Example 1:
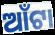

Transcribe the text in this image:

ଆଁଟା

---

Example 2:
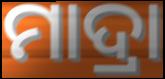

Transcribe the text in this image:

ମାଦ୍ରା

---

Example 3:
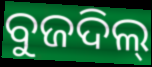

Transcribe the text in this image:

ବୁଜଦିଲ୍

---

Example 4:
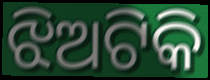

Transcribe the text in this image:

ଝିଅଟିକି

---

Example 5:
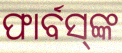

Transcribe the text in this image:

ଫାର୍ବସ୍‌ଙ୍କ